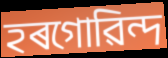
হৰগোৱিন্দ